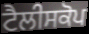
ਟੈਲੀਸਕੋਪ